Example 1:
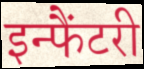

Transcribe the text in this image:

इन्फैंटरी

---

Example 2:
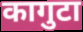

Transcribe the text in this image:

कागुटा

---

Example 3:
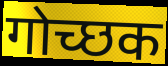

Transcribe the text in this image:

गोच्छक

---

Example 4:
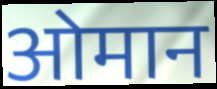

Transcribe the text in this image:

ओमान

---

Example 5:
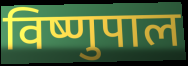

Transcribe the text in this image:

विष्णुपाल